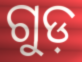
ଗୁଡ଼